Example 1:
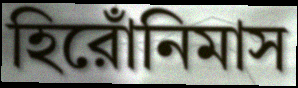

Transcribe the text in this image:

হিরোঁনিমাস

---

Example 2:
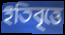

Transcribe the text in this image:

ইতিবৃত্তে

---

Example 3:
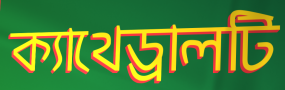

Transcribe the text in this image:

ক্যাথেড্রালটি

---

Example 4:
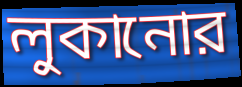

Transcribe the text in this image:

লুকানোর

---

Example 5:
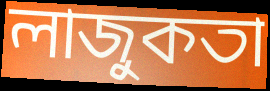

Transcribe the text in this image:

লাজুকতা